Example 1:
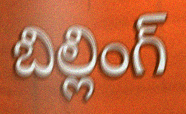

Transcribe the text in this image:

బిల్లింగ్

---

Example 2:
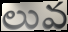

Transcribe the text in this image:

లువ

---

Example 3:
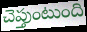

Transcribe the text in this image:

చెప్తుంటుంది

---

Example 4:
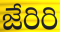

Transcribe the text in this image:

జేరిరి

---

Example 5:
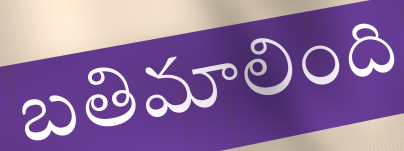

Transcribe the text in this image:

బతిమాలింది